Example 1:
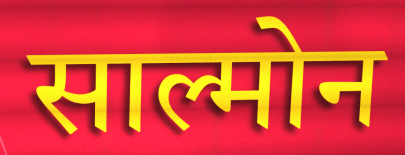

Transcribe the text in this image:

साल्मोन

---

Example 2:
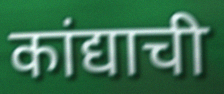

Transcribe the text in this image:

कांद्याची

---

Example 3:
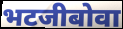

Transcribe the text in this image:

भटजीबोवा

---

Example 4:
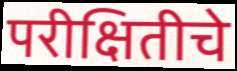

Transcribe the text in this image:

परीक्षितीचे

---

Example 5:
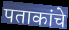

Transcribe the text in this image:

पताकांचे